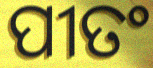
ପୀତଂ